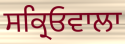
ਸਕ੍ਰਿਓਵਾਲਾ